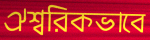
ঐশ্বরিকভাবে